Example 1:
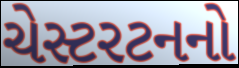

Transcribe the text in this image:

ચેસ્ટરટનનો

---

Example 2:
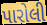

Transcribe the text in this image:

પારોલી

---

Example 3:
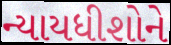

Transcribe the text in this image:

ન્યાયધીશોને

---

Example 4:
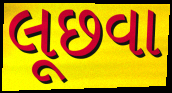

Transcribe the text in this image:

લૂછવા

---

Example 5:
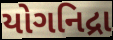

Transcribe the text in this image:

યોગનિદ્રા